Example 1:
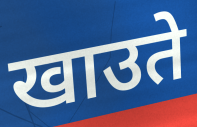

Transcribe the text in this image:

खाउते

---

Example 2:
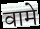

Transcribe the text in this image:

वामे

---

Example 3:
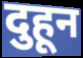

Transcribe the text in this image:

दुहून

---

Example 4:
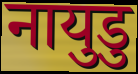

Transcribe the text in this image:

नायुडु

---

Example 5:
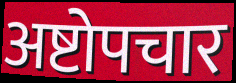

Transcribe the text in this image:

अष्टोपचार